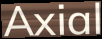
Axial